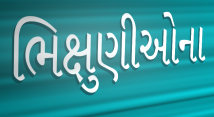
ભિક્ષુણીઓના